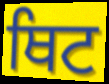
ਥਿਟ